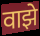
वाझे